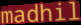
madhil